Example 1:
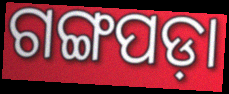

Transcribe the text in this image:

ଗଙ୍ଗପଡ଼ା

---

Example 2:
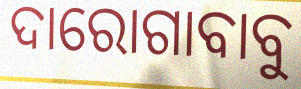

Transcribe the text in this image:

ଦାରୋଗାବାବୁ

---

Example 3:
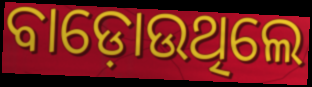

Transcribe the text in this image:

ବାଡ଼ୋଉଥିଲେ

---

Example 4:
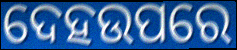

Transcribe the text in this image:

ଦେହଉପରେ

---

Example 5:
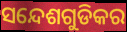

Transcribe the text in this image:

ସନ୍ଦେଶଗୁଡିକର